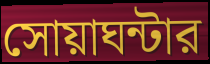
সোয়াঘন্টার